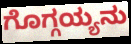
ಗೊಗ್ಗಯ್ಯನು